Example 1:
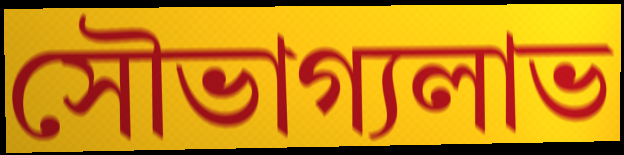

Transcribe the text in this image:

সৌভাগ্যলাভ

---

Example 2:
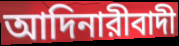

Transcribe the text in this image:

আদিনারীবাদী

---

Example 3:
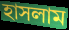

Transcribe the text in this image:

হাসলাম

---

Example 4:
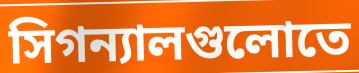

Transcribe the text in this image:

সিগন্যালগুলোতে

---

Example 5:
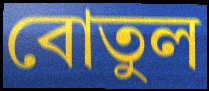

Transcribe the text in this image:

বোতুল